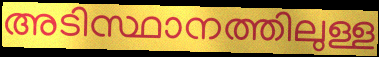
അടിസ്ഥാനത്തിലുള്ള